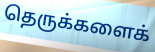
தெருக்களைக்